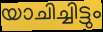
യാചിച്ചിട്ടും